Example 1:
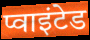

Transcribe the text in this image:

प्वाइंटेड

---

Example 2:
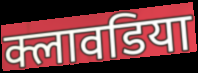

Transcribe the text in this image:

क्लावडिया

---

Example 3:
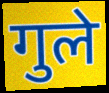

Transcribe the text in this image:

गुले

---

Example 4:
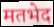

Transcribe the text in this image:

मतभेद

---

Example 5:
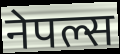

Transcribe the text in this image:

नेपल्स